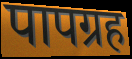
पापग्रह